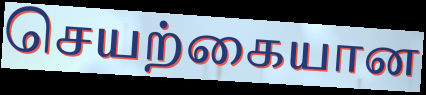
செயற்கையான